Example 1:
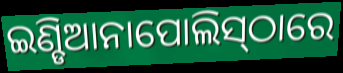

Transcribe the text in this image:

ଇଣ୍ଡିଆନାପୋଲିସ୍‍ଠାରେ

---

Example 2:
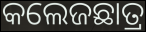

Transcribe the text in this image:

କଲେଜଛାତ୍ର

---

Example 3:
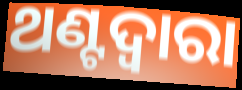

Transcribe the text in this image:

ଥଣ୍ଟଦ୍ୱାରା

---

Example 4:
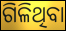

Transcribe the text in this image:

ଗିଳିଥିବା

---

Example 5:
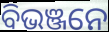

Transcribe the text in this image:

ବିଭଞ୍ଜନେ